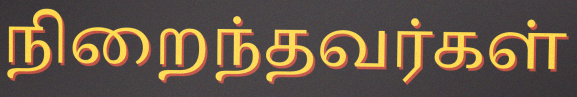
நிறைந்தவர்கள்